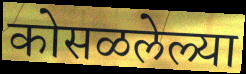
कोसळलेल्या